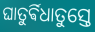
ଘାତୁର୍ଵିଧାତୁସ୍ତେ